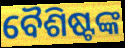
ବୈଶିଷ୍ଟଙ୍କ